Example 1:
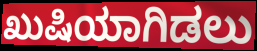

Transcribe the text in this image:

ಖುಷಿಯಾಗಿಡಲು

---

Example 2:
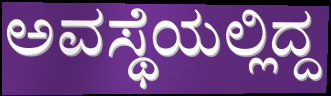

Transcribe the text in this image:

ಅವಸ್ಥೆಯಲ್ಲಿದ್ದ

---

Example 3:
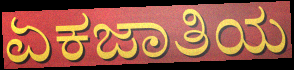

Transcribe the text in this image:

ಏಕಜಾತಿಯ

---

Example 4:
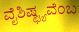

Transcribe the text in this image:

ವೈಶಿಷ್ಟ್ಯವೆಂಬ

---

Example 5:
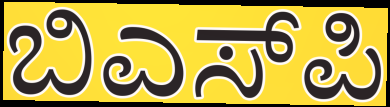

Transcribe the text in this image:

ಬಿಎಸ್‌ಪಿ